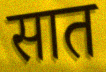
सात